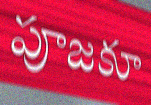
పూజకూ